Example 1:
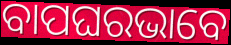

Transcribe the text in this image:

ବାପଘରଭାବେ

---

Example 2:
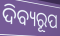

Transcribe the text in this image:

ଦିବ୍ୟରୂପ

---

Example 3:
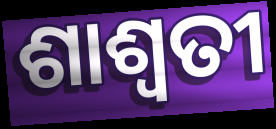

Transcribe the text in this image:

ଶାଶ୍ଵତୀ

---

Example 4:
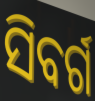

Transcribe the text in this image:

ସିବର୍ଗ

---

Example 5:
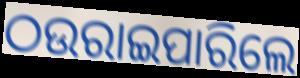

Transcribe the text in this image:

ଠଉରାଇପାରିଲେ